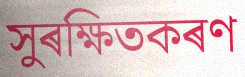
সুৰক্ষিতকৰণ